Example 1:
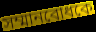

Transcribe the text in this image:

সম্মানবোধকে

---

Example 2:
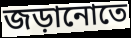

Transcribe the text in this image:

জড়ানোতে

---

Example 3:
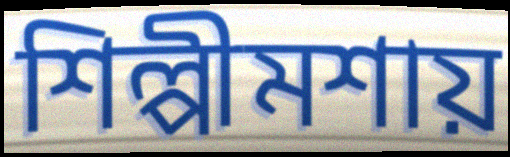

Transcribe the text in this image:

শিল্পীমশায়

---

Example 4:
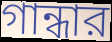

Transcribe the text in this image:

গান্ধার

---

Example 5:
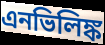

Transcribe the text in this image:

এনভিলিঙ্ক